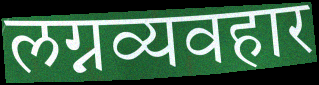
लग्नव्यवहार